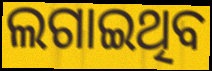
ଲଗାଇଥିବ